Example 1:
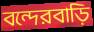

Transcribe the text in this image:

বন্দেরবাড়ি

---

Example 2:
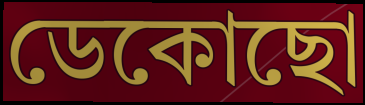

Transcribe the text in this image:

ডেকোছো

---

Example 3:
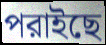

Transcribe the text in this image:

পরাইছে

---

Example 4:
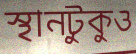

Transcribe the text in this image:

স্থানটুকুও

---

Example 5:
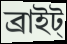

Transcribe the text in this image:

ব্রাইট্